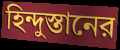
হিন্দুস্তানের